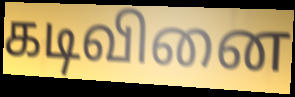
கடிவினை